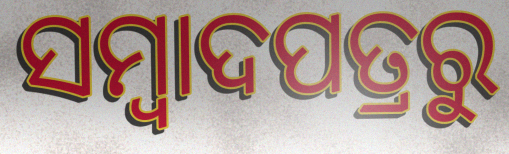
ସମ୍ବାଦପତ୍ରରୁ